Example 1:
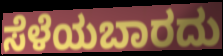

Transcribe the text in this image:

ಸೆಳೆಯಬಾರದು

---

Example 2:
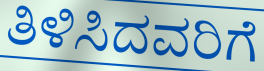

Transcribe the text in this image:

ತಿಳಿಸಿದವರಿಗೆ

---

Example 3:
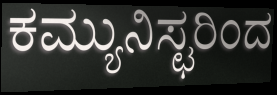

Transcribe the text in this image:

ಕಮ್ಯುನಿಸ್ಟರಿಂದ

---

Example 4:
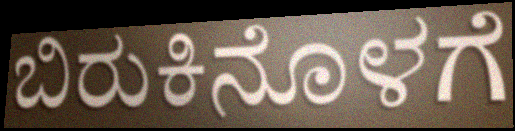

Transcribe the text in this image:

ಬಿರುಕಿನೊಳಗೆ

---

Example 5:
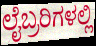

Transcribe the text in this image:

ಲೈಬ್ರರಿಗಳಲ್ಲಿ